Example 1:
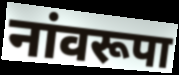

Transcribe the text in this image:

नांवरूपा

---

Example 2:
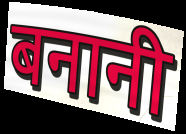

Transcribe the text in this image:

बनानी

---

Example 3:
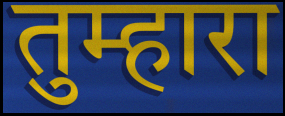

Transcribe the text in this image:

तुम्हारा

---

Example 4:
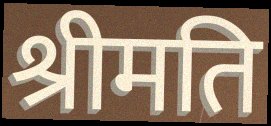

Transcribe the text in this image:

श्रीमति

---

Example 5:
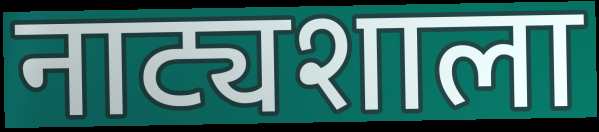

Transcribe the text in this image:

नाट्यशाला